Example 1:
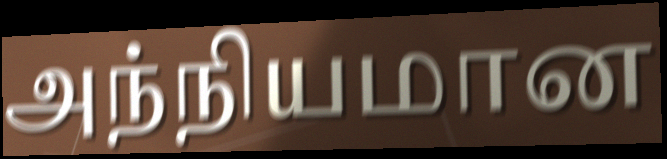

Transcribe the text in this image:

அந்நியமான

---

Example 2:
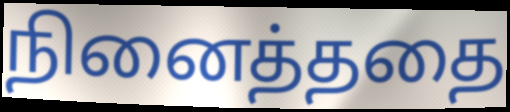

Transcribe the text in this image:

நினைத்ததை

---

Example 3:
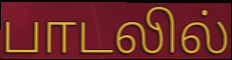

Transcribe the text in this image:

பாடலில்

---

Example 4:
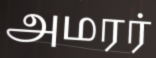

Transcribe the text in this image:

அமரர்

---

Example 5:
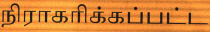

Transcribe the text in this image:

நிராகரிக்கப்பட்ட